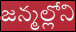
జన్మల్లోని